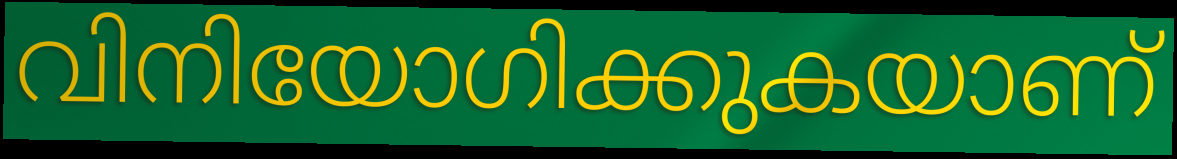
വിനിയോഗിക്കുകയാണ്